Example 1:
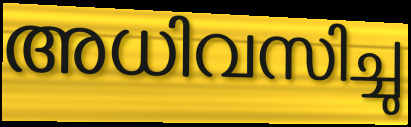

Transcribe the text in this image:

അധിവസിച്ചു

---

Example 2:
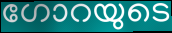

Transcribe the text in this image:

ഗോറയുടെ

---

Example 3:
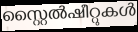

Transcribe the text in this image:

സ്റ്റൈൽഷീറ്റുകൾ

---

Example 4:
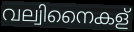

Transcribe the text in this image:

വല്വിനൈകള്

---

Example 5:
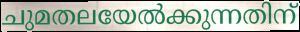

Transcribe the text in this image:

ചുമതലയേൽക്കുന്നതിന്